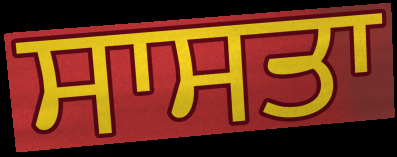
ਸਾਸਤਾ